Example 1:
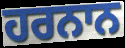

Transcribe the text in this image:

ਹਰਨਾਨ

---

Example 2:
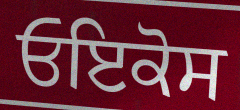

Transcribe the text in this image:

ਓਇਕੋਸ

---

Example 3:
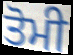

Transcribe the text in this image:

ਤੋਮੀ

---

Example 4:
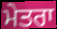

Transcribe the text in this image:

ਮੇਤਰਾ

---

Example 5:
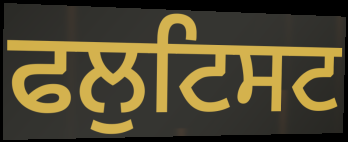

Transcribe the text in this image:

ਫਲੁਟਿਸਟ